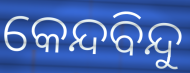
କେନ୍ଦବିନ୍ଦୁ